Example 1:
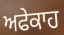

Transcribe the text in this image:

ਅਫੇਕਾਹ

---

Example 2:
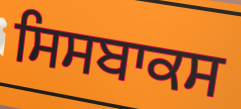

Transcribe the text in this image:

ਸਿਸਬਾਕਸ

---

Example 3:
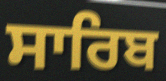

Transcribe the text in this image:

ਸਾਰਿਬ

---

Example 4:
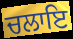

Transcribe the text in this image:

ਚਲਾਇ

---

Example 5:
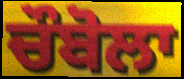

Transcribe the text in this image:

ਚੌਬੋਲਾ